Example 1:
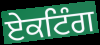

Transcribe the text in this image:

ਏਕਟਿੰਗ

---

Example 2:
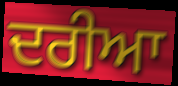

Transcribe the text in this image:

ਦਰੀਆ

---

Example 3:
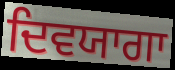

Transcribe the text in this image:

ਦਿਵਯਾਗਾ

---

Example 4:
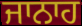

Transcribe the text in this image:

ਜਾਨਾਹ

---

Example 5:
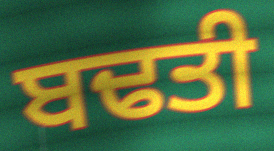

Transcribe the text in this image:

ਬਢਤੀ